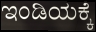
ಇಂಡಿಯಕ್ಕೆ